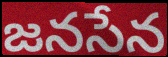
జనసేన